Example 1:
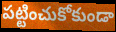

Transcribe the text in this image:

పట్టించుకోకుండా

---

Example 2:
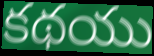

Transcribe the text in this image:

కథయు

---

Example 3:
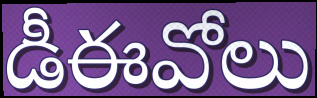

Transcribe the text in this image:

డీఈవోలు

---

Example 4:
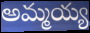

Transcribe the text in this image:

అమ్మయ్య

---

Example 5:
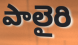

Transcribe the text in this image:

పాలైరి